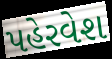
પહેરવેશ